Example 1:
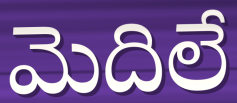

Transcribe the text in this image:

మెదిలే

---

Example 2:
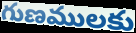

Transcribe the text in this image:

గుణములకు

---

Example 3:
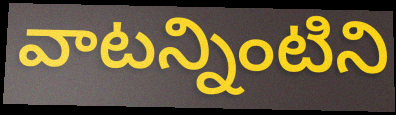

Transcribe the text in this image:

వాటన్నింటిని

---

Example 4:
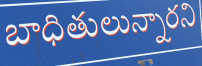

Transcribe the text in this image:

బాధితులున్నారని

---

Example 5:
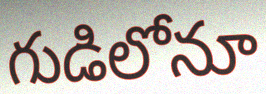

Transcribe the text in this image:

గుడిలోనూ